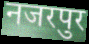
नजरपुर